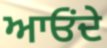
ਆਓਂਦੇ